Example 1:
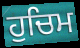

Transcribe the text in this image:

ਹੁਚਿਮ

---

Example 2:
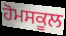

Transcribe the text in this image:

ਹੋਮਸਕੂਲ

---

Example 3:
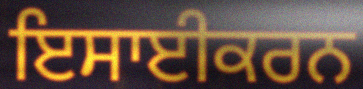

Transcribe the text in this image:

ਇਸਾਈਕਰਨ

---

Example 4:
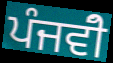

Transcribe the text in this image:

ਪੰਜਵੀਁ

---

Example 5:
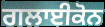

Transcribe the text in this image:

ਗਲਾਈਕੋਨ